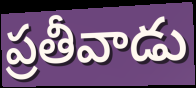
ప్రతీవాడు